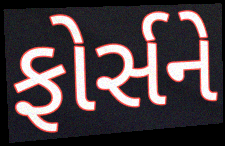
ફોર્સને